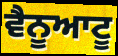
ਵੈਨੂਆਟੂ